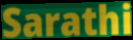
Sarathi